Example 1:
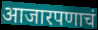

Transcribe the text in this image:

आजारपणाचं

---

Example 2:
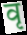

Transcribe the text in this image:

वृ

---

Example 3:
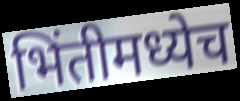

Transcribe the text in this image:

भिंतीमध्येच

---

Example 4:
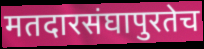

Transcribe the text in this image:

मतदारसंघापुरतेच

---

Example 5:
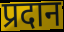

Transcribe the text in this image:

प्रदान